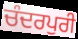
ਚੰਦਰਪੁਰੀ